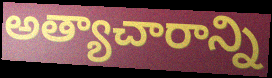
అత్యాచారాన్ని